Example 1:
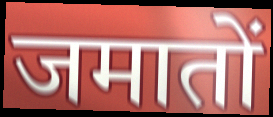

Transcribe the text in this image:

जमातों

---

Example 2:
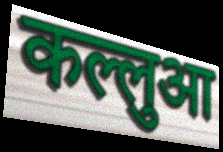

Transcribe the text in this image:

कल्लुआ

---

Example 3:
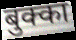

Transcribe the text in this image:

बुक्का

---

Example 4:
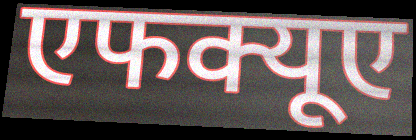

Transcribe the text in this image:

एफक्यूए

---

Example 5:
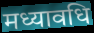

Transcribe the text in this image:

मध्‍यावधि